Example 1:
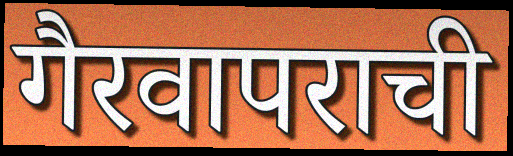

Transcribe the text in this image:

गैरवापराची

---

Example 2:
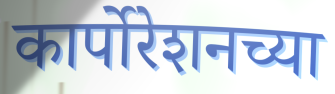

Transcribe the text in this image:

कार्पोरेशनच्या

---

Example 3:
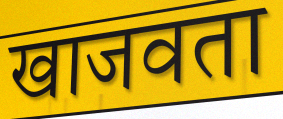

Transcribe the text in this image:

खाजवता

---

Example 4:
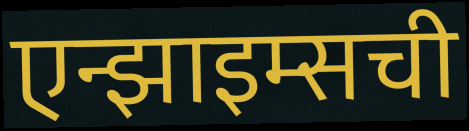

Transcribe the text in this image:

एन्झाइम्सची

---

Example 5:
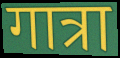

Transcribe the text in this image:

गात्रा